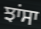
ਝਾਂਸਾ